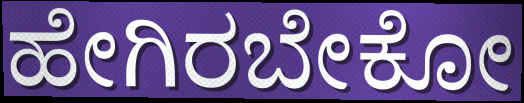
ಹೇಗಿರಬೇಕೋ